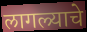
लागल्याचे